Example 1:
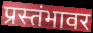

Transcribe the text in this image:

प्रस्तंभावर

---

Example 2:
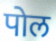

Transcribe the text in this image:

पोल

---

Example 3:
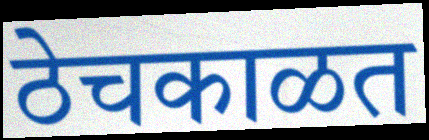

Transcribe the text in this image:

ठेचकाळत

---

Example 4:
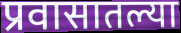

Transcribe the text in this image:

प्रवासातल्या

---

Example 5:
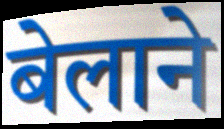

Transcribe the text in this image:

बेलाने